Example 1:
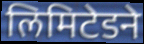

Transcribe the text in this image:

लिमिटेडने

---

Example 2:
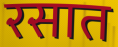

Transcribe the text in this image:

रसात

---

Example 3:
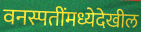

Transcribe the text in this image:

वनस्पतींमध्येदेखील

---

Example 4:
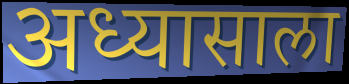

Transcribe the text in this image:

अध्यासाला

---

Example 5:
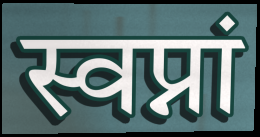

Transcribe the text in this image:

स्वप्नां